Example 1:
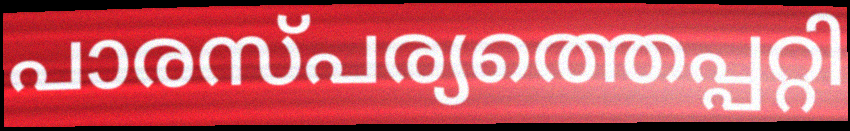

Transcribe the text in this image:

പാരസ്പര്യത്തെപ്പറ്റി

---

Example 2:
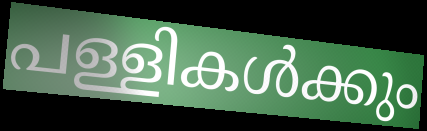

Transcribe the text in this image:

പള്ളികൾക്കും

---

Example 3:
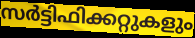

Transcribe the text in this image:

സർട്ടിഫിക്കറ്റുകളും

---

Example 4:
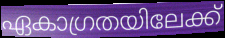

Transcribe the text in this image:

ഏകാഗ്രതയിലേക്ക്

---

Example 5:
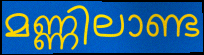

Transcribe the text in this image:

മണ്ണിലാണ്ട